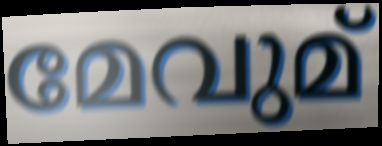
മേവുമ്